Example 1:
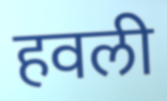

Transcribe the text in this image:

हवली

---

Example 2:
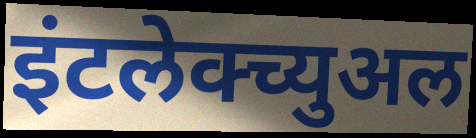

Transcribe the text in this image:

इंटलेक्च्युअल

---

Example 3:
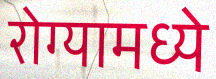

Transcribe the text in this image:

रोग्यामध्ये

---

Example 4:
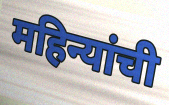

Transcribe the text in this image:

महिन्यांची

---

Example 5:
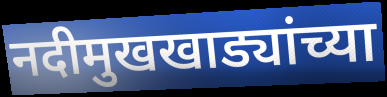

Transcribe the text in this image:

नदीमुखखाड्यांच्या